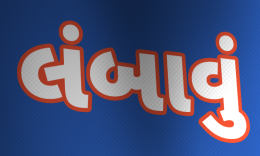
લંબાવું